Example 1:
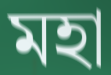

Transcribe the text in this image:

মহা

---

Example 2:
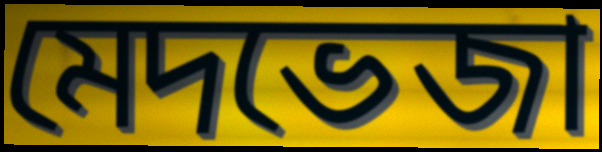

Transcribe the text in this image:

মেদভেজা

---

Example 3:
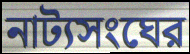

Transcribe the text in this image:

নাট্যসংঘের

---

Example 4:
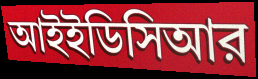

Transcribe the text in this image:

আইইডিসিআর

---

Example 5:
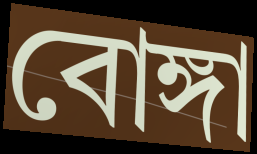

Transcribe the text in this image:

বোঙ্গা